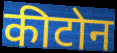
कीटोन